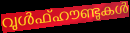
വുൾഫ്ഹൗണ്ടുകൾ